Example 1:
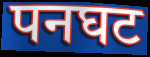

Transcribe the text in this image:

पनघट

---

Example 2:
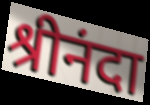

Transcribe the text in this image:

श्रीनंदा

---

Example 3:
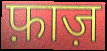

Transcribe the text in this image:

फ़ाज़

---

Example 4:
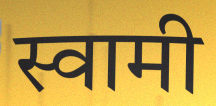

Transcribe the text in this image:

स्‍वामी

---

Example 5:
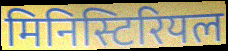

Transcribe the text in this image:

मिनिस्टिरियल